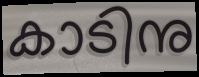
കാടിനു